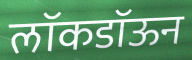
लॉकडॉऊन